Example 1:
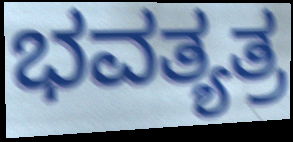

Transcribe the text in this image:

ಭವತ್ಯತ್ರ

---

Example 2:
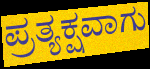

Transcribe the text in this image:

ಪ್ರತ್ಯಕ್ಷವಾಗು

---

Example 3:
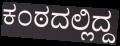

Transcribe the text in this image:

ಕಂಠದಲ್ಲಿದ್ದ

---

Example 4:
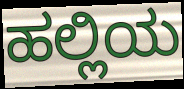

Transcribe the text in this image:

ಹಲ್ಲಿಯ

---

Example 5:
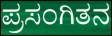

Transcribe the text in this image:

ಪ್ರಸಂಗಿತನ